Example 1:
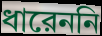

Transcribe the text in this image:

ধারেননি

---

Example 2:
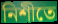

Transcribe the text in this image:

নিশীতে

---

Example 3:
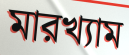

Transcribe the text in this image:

মারখ্যাম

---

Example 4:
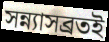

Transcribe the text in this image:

সন্ন্যাসব্রতই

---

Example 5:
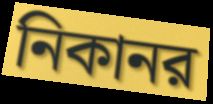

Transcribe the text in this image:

নিকানর